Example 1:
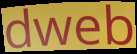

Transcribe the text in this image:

dweb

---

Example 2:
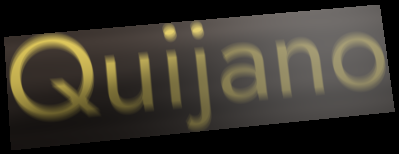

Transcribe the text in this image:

Quijano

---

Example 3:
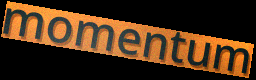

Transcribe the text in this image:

momentum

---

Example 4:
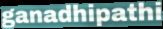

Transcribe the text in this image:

ganadhipathi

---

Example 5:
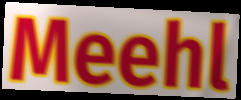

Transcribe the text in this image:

Meehl